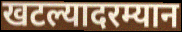
खटल्यादरम्यान